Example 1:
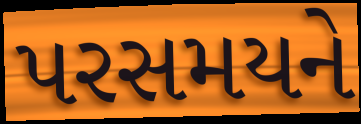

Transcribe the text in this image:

પરસમયને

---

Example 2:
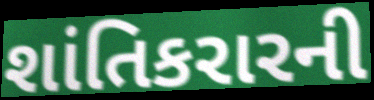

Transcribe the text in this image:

શાંતિકરારની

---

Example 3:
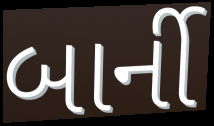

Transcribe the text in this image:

બાર્ની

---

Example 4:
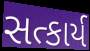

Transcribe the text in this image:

સત્કાર્ય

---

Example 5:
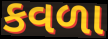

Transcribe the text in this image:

કવળા